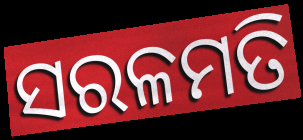
ସରଳମତି